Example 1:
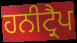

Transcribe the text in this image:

ਹਨੀਟ੍ਰੈਪ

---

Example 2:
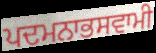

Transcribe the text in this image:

ਪਦਮਨਾਭਸਵਾਮੀ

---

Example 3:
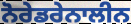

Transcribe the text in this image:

ਨੋਰੇਡਰੇਨਾਲੀਨ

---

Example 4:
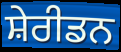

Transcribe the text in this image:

ਸ਼ੇਰੀਡਨ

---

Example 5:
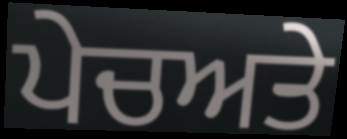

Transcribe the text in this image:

ਪੇਚਅਤੇ